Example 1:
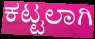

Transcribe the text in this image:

ಕಟ್ಟಲಾಗಿ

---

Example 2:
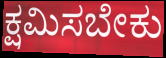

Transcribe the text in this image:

ಕ್ಷಮಿಸಬೇಕು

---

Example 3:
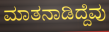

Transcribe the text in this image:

ಮಾತನಾಡಿದ್ದೆವು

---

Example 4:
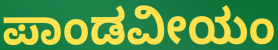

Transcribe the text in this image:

ಪಾಂಡವೀಯಂ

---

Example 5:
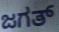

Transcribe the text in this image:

ಜಗತ್